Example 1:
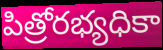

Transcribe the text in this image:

పిత్రోరభ్యధికా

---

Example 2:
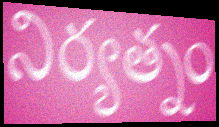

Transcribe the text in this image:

నిర్యత్నం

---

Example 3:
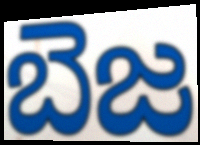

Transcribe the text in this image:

బెజ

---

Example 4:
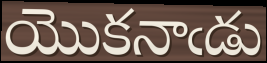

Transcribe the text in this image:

యొకనాఁడు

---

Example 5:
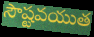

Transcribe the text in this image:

సౌష్టవయుత